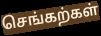
செங்கற்கள்